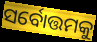
ସର୍ବୋତ୍ତମକୁ